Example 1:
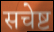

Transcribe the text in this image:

सचेष्ट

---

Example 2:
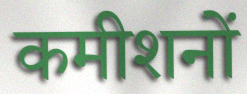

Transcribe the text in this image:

कमीशनों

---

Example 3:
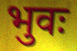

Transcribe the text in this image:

भुवः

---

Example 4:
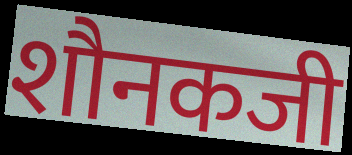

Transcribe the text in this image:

शौनकजी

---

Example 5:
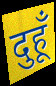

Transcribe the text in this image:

दुहूँ